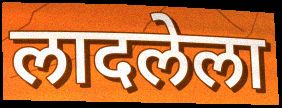
लादलेला